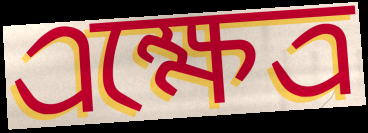
এক্ষেত্র